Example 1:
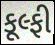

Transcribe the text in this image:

કૂલ્ફી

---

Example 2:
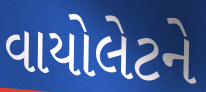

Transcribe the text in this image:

વાયોલેટને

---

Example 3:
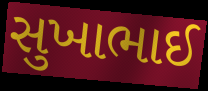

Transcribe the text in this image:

સુખાભાઈ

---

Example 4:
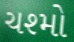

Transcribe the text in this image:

ચશ્મો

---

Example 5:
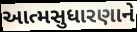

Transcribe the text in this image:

આત્મસુધારણાને